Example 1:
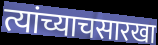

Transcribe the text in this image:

त्यांच्याचसारखा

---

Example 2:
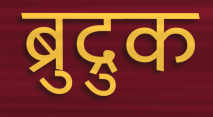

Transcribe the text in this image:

ब्रुद्रुक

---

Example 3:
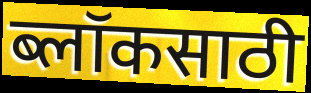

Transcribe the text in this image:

ब्लॉकसाठी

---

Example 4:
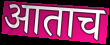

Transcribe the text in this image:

आताच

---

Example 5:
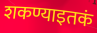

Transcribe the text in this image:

शकण्याइतकं